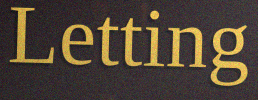
Letting